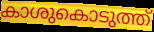
കാശുകൊടുത്ത്